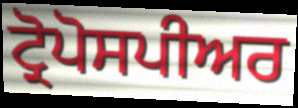
ਟ੍ਰੋਪੋਸਪੀਅਰ